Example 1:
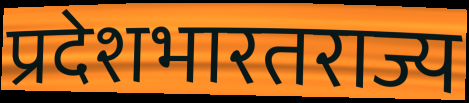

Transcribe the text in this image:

प्रदेशभारतराज्य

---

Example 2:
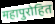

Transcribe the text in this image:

महापुरोहित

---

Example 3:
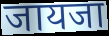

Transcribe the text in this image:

जायजा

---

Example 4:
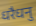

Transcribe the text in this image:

धरैधनु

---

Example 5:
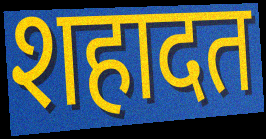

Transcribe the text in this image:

शहादत